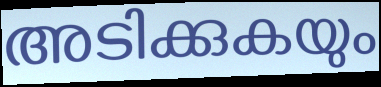
അടിക്കുകയും